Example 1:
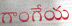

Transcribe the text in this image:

గాంగేయ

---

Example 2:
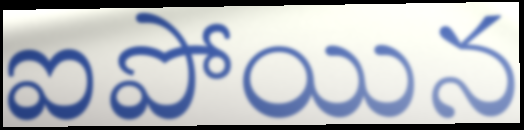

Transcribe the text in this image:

ఐపోయిన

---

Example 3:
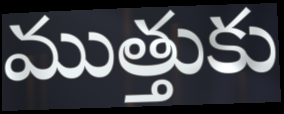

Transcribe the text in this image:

ముత్తుకు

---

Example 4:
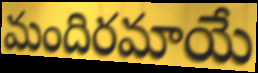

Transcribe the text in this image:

మందిరమాయే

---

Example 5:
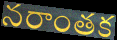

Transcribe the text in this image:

నరాంతక